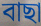
বাছা